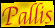
Pallis